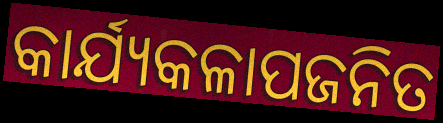
କାର୍ଯ୍ୟକଳାପଜନିତ